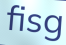
fisg